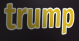
trump